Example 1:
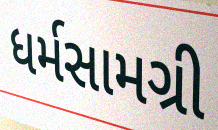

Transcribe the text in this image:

ધર્મસામગ્રી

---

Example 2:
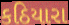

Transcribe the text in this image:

કઠિયારા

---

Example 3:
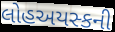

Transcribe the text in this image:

લોહઅયસ્કની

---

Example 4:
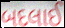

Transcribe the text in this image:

બદલાઈ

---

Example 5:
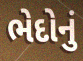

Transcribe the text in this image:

ભેદોનું